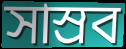
সাস্রব